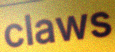
claws